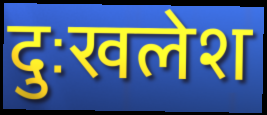
दुःखलेश